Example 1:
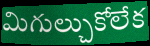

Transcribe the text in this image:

మిగుల్చుకోలేక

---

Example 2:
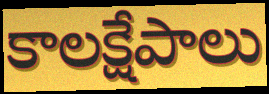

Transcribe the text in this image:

కాలక్షేపాలు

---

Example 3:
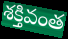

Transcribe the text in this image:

శక్తివంత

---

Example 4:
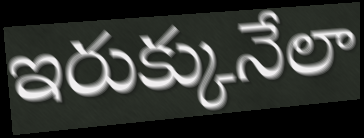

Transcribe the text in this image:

ఇరుక్కునేలా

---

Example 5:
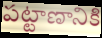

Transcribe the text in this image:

పట్టాణానికి